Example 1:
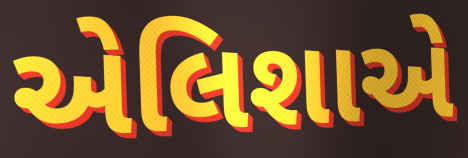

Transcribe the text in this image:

એલિશાએ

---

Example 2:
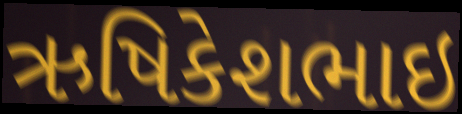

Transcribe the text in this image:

ઋષિકેશભાઇ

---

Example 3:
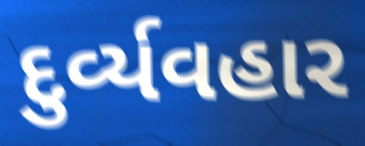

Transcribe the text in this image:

દુર્વ્યવહાર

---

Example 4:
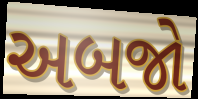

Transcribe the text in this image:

અબજો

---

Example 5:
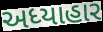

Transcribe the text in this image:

અધ્યાહાર